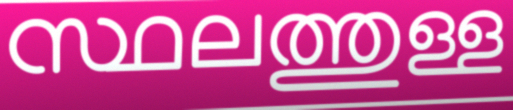
സ്ഥലത്തുള്ള